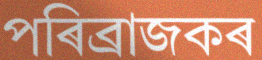
পৰিব্ৰাজকৰ